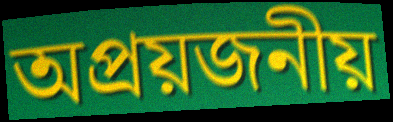
অপ্রয়জনীয়